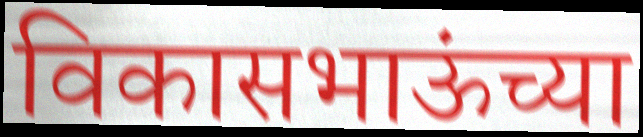
विकासभाऊंच्या